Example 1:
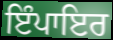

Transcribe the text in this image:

ਇੰਪਾਇਰ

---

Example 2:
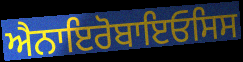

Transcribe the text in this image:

ਐਨਾਇਰੋਬਾਇਓਸਿਸ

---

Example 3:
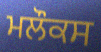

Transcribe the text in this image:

ਮਲੌਕਸ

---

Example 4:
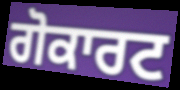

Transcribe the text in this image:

ਗੋਕਾਰਟ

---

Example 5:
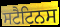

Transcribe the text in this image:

ਸਟੈਟਿਨਸ